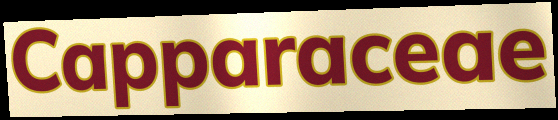
Capparaceae